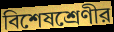
বিশেষশ্রেণীর